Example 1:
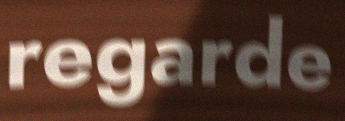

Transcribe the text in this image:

regarde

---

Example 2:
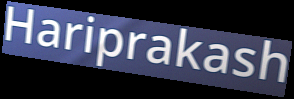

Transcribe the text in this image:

Hariprakash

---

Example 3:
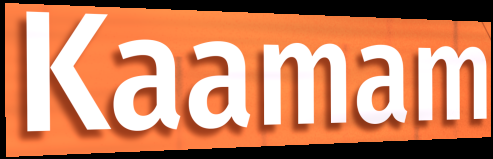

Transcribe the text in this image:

Kaamam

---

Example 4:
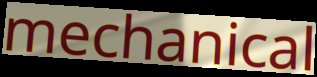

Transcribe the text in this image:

mechanical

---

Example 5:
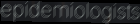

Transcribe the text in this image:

epidemiologists